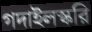
গদাইলস্করি